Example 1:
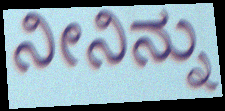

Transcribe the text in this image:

ನೀನಿನ್ನು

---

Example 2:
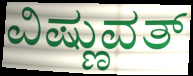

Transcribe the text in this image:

ವಿಷ್ಣುವತ್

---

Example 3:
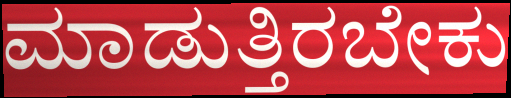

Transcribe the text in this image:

ಮಾಡುತ್ತಿರಬೇಕು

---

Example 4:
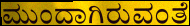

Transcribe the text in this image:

ಮುಂದಾಗಿರುವಂತೆ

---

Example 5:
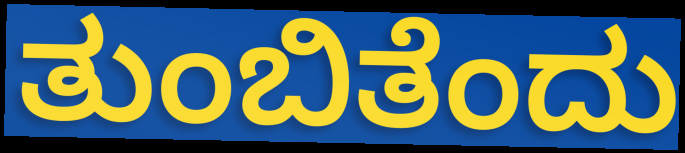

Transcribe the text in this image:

ತುಂಬಿತೆಂದು